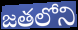
జతలోని